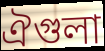
ঐগুলা